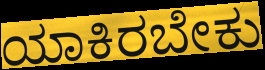
ಯಾಕಿರಬೇಕು